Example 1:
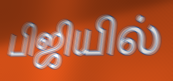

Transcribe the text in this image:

பிஜியில்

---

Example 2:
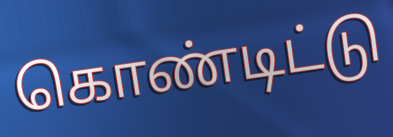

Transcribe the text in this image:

கொண்டிட்டு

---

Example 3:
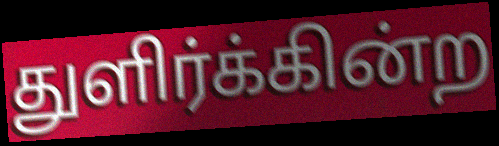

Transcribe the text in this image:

துளிர்க்கின்ற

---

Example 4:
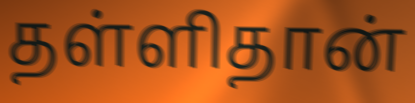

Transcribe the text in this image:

தள்ளிதான்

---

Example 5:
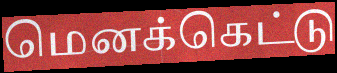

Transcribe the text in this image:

மெனக்கெட்டு